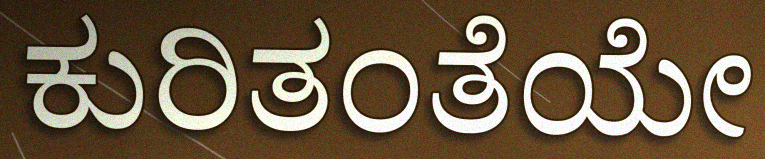
ಕುರಿತಂತೆಯೇ